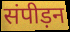
संपीड़न